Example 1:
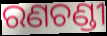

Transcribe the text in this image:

ରଣଚଣ୍ଡୀ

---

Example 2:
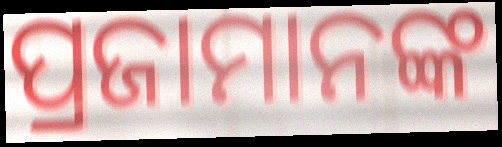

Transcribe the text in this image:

ପ୍ରଜାମାନଙ୍କ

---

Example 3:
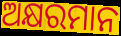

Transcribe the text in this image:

ଅକ୍ଷରମାନ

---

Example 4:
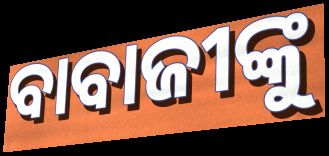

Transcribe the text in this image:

ବାବାଜୀଙ୍କୁ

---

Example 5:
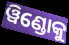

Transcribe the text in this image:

ୱିଣ୍ଡୋକୁ